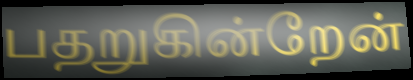
பதறுகின்றேன்